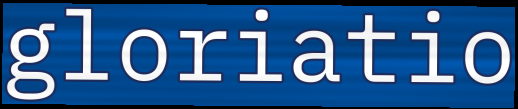
gloriatio